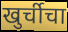
खुर्चीचा